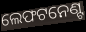
ଲେଫଟନେଣ୍ଟ